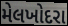
મેલખોદરા